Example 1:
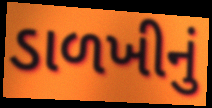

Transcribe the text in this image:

ડાળખીનું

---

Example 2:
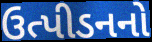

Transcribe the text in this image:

ઉત્પીડનનો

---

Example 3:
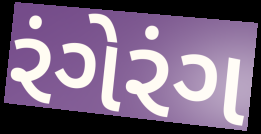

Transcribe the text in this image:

રંગેરંગ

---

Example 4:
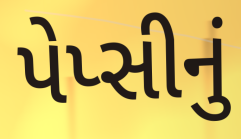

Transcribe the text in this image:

પેપ્સીનું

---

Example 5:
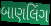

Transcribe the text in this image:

બાણલિંગ